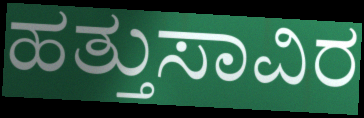
ಹತ್ತುಸಾವಿರ